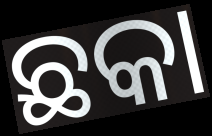
ଛକା